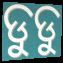
ଡୁଡୁ